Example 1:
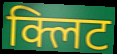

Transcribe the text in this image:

क्लिट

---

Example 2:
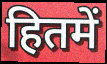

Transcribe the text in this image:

हितमें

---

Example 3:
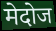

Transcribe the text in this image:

मेदोज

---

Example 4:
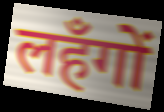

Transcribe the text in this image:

लहँगों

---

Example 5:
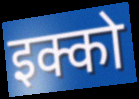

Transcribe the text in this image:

इक्को